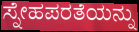
ಸ್ನೇಹಪರತೆಯನ್ನು